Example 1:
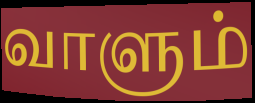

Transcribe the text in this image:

வாளும்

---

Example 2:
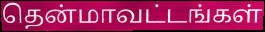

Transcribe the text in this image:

தென்மாவட்டங்கள்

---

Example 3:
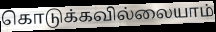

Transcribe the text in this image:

கொடுக்கவில்லையாம்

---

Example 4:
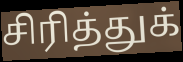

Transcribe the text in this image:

சிரித்துக்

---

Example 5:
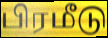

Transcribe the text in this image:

பிரமீடு